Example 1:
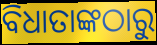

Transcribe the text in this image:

ବିଧାତାଙ୍କଠାରୁ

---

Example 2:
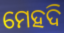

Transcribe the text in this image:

ମେହଦି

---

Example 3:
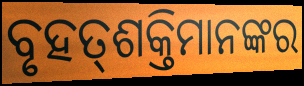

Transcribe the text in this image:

ବୃହତ୍‌ଶକ୍ତିମାନଙ୍କର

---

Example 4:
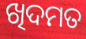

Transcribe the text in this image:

ଖିଦମତ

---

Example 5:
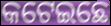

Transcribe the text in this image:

କଟେଇଛେ